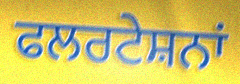
ਫਲਰਟੇਸ਼ਨਾਂ